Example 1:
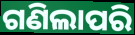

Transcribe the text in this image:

ଗଣିଲାପରି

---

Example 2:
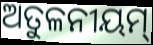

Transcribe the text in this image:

ଅତୁଳନୀୟମ୍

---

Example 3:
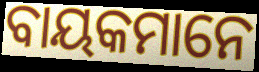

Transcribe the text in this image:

ବାୟକମାନେ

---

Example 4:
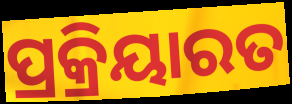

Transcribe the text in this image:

ପ୍ରକ୍ରିୟାରତ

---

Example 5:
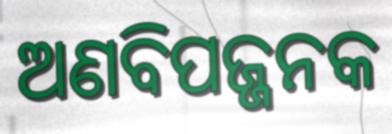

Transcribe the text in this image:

ଅଣବିପଜ୍ଜନକ